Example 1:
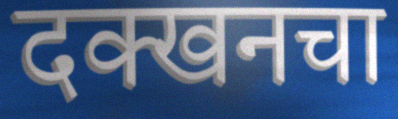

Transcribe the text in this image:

दक्खनचा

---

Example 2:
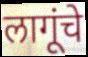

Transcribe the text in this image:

लागूंचे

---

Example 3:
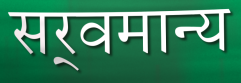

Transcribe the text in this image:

सर्वमान्य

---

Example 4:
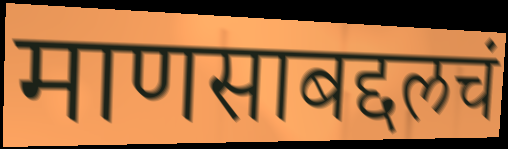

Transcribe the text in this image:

माणसाबद्दलचं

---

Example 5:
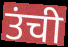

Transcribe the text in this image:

उंची